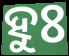
ହୁଃ